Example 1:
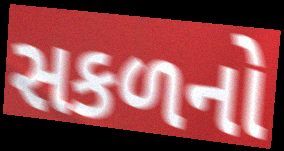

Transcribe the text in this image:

સકળનો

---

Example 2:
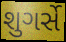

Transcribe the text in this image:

શુગર્સે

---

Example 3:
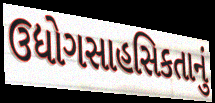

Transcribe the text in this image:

ઉદ્યોગસાહસિકતાનું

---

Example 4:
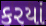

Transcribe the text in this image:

કરયાં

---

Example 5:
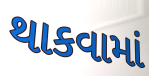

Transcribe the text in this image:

થાકવામાં